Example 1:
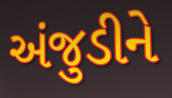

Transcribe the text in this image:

અંજુડીને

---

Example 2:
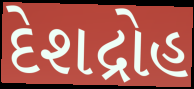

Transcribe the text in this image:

દેશદ્રોહ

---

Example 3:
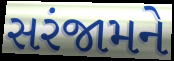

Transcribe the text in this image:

સરંજામને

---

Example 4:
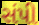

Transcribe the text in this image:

સંપી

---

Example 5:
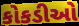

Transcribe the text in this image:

કોકડીઓ